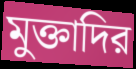
মুক্তাদির